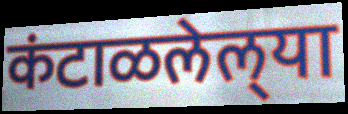
कंटाळलेल्या